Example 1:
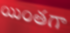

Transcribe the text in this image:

యింతగా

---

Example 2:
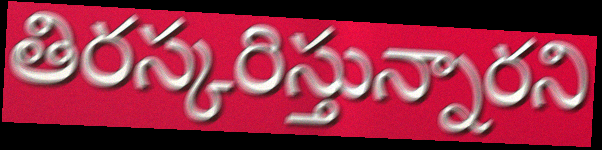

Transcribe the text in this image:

తిరస్కరిస్తున్నారని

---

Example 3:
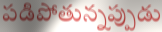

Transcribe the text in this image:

పడిపోతున్నప్పుడు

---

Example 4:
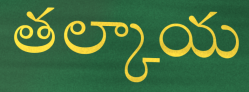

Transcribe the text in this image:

తల్కాయ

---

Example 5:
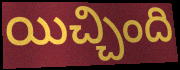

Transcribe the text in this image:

యిచ్చింది